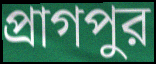
প্রাগপুর